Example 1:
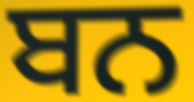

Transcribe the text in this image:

ਬਨ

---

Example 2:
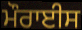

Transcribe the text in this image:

ਮੌਰਾਈਸ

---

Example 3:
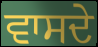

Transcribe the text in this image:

ਵਾਸਦੇ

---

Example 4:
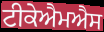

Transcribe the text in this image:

ਟੀਕੇਐਮਐਸ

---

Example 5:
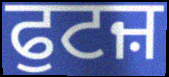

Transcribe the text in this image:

ਫੁਟਜ਼